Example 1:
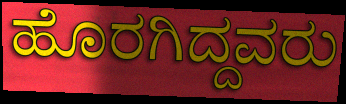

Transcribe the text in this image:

ಹೊರಗಿದ್ದವರು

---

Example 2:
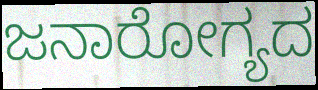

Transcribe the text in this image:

ಜನಾರೋಗ್ಯದ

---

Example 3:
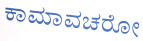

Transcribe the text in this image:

ಕಾಮಾವಚರೋ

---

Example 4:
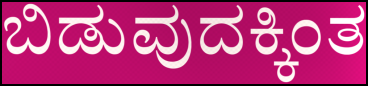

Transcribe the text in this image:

ಬಿಡುವುದಕ್ಕಿಂತ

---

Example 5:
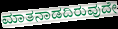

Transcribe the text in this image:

ಮಾತನಾಡದಿರುವುದೇ